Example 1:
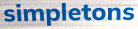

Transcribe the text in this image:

simpletons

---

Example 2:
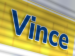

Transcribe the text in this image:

Vince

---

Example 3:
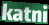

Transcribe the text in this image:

katni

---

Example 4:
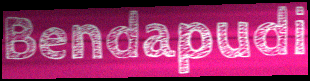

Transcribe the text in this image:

Bendapudi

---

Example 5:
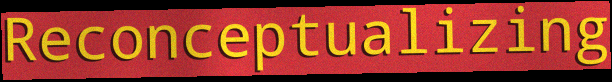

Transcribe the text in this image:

Reconceptualizing